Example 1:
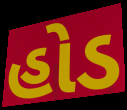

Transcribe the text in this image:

હોડ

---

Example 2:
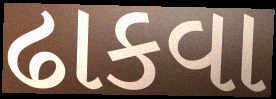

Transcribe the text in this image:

ઢાકવા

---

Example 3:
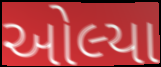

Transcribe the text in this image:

ઓલ્યા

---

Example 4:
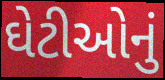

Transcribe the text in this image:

ઘેટીઓનું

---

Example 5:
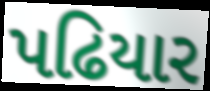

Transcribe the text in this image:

પઢિયાર